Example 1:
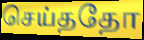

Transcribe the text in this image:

செய்ததோ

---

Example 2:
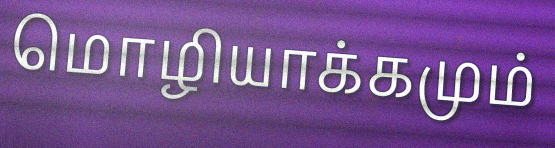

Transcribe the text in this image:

மொழியாக்கமும்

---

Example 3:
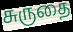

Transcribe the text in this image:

சுருதை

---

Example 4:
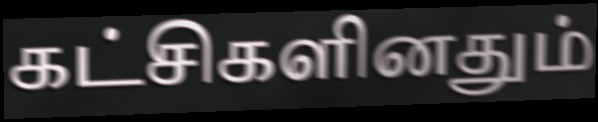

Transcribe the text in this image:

கட்சிகளினதும்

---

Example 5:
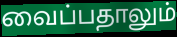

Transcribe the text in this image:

வைப்பதாலும்